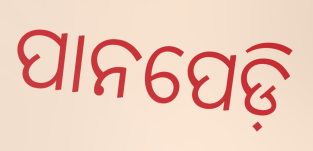
ପାନପେଡ଼ି